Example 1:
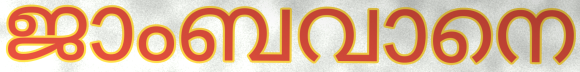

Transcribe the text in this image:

ജാംബവാനെ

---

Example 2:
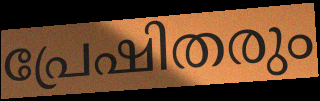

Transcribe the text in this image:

പ്രേഷിതരും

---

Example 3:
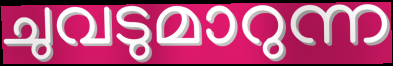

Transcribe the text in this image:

ചുവടുമാറുന്ന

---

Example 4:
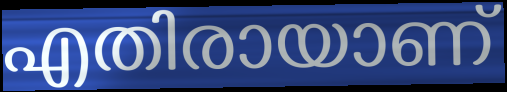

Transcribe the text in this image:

എതിരായാണ്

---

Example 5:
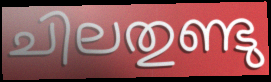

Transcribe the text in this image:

ചിലതുണ്ടു